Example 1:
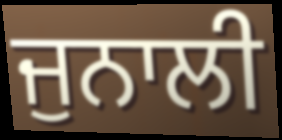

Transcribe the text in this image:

ਜੁਨਾਲੀ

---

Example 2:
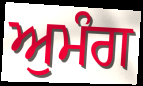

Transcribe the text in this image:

ਅੁਮੰਗ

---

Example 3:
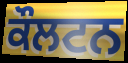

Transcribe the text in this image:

ਕੌਲਟਨ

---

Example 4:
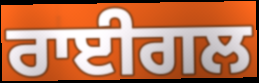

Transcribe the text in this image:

ਰਾਈਗਲ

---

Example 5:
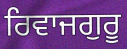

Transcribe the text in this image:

ਰਿਵਾਜਗੁਰੂ